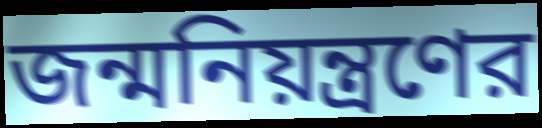
জন্মনিয়ন্ত্রণের